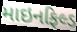
માઇનફિલ્ડ